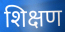
शिक्षण